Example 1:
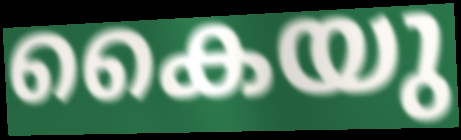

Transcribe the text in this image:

കൈയു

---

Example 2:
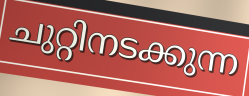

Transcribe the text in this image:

ചുറ്റിനടക്കുന്ന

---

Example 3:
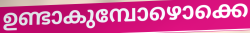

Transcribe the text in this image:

ഉണ്ടാകുമ്പോഴൊക്കെ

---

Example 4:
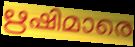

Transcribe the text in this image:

ഋഷിമാരെ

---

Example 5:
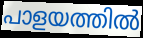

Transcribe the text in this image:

പാളയത്തിൽ